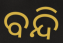
ବନ୍ଦି